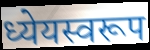
ध्येयस्वरूप